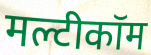
मल्टीकॉम